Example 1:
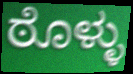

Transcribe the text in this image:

ಠೊಳ್ಳು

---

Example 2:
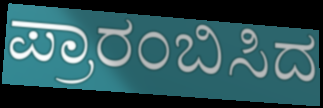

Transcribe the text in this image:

ಪ್ರಾರಂಬಿಸಿದ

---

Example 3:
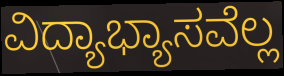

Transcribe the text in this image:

ವಿದ್ಯಾಭ್ಯಾಸವೆಲ್ಲ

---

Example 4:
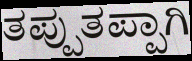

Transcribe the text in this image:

ತಪ್ಪುತಪ್ಪಾಗಿ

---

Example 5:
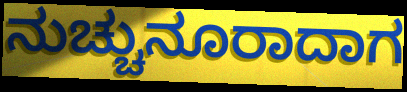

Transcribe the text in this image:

ನುಚ್ಚುನೂರಾದಾಗ